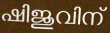
ഷിജുവിന്